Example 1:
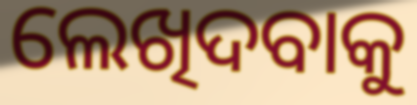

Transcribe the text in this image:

ଲେଖିଦବାକୁ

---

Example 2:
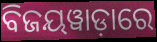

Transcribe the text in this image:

ବିଜୟୱାଡ଼ାରେ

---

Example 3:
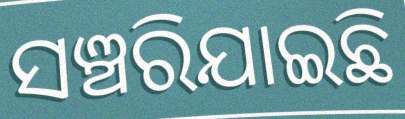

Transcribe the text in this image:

ସଞ୍ଚରିଯାଇଛି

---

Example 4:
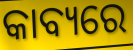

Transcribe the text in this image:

କାବ୍ଯରେ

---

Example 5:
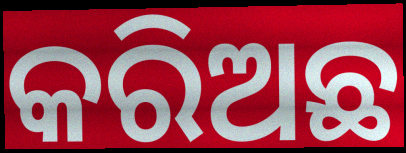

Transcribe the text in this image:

କରିଅଛ